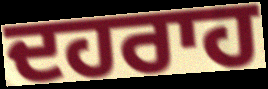
ਦਹਰਾਹ